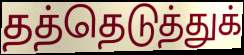
தத்தெடுத்துக்